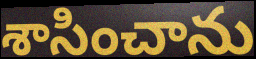
శాసించాను